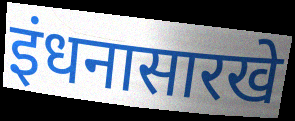
इंधनासारखे